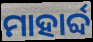
ମାହାର୍ବ୍ଦ